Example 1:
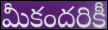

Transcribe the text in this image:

మీకందరికీ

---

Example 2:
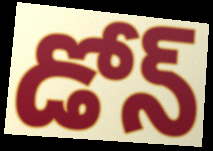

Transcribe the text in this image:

డోన్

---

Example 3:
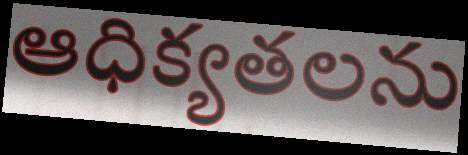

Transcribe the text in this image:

ఆధిక్యతలను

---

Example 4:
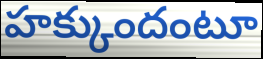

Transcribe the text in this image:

హక్కుందంటూ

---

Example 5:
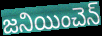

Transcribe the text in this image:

జనియించెన్